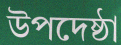
উপদেষ্ঠা